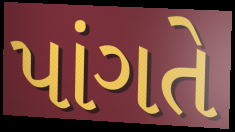
પાંગતે